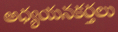
అధ్యయనకర్తలు